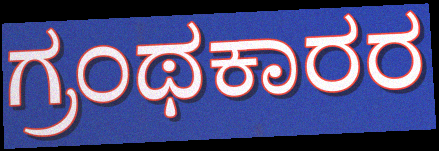
ಗ್ರಂಥಕಾರರ